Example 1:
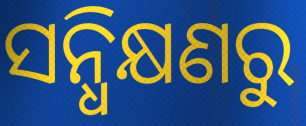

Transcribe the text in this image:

ସନ୍ଧିକ୍ଷଣରୁ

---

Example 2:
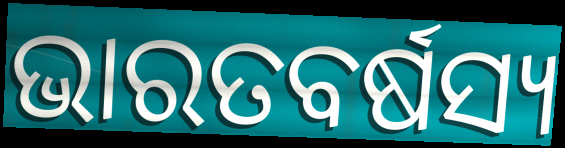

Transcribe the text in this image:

ଭାରତବର୍ଷସ୍ୟ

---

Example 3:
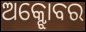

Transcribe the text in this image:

ଅକ୍ଝୋବର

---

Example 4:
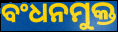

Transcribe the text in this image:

ବଂଧନମୁକ୍ତ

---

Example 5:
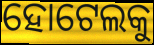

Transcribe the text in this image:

ହୋଟେଲକୁ